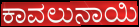
ಕಾವಲುನಾಯಿ